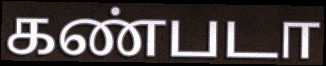
கண்படா